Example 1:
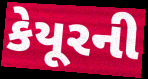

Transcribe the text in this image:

કેયૂરની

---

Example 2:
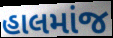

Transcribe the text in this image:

હાલમાંજ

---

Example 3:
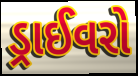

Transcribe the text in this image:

ડ્રાઈવરો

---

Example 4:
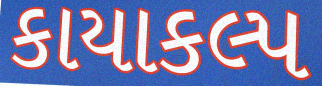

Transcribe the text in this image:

કાયાકલ્પ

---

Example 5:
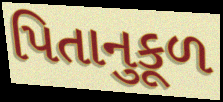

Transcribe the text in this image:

પિતાનુકૂળ